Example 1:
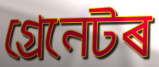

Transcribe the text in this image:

গ্ৰেনেটৰ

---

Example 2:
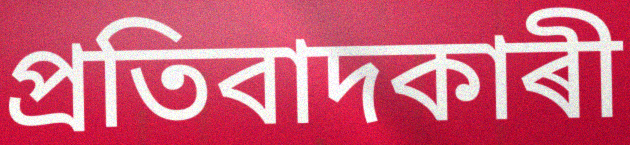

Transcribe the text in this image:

প্ৰতিবাদকাৰী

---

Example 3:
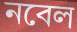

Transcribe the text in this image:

নবেল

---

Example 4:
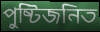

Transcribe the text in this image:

পুষ্টিজনিত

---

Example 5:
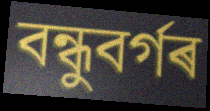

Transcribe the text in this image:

বন্ধুবৰ্গৰ